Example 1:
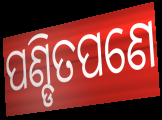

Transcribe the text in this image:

ପଣ୍ଡିତପଣେ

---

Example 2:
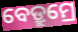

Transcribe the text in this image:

ବେଡ୍ରୁମ୍ରେ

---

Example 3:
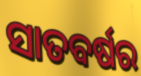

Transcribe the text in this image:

ସାତବର୍ଷର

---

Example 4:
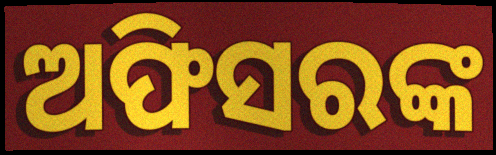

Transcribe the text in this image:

ଅଫିସରଙ୍କ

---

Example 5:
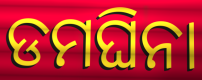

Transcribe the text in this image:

ଡମଘିନା